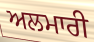
ਅਲਮਾਰੀ